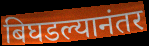
बिघडल्यानंतर